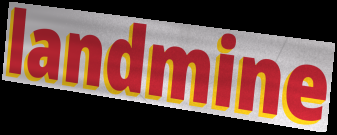
landmine